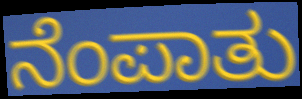
ನೆಂಪಾತು